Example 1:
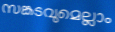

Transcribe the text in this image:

സങ്കടവുമെല്ലാം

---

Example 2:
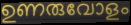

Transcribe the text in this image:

ഉണരുവോളം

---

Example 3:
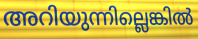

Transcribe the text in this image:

അറിയുന്നില്ലെങ്കിൽ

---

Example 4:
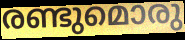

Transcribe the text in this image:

രണ്ടുമൊരു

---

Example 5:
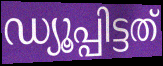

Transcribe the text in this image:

ഡ്യൂപ്പിട്ടത്